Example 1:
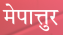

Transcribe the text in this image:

मेपात्तुर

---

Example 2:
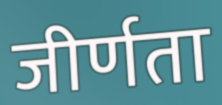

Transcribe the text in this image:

जीर्णता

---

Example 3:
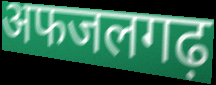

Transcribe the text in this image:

अफजलगढ़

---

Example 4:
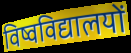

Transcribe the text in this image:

विष्वविद्यालयों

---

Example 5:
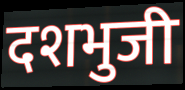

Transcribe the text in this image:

दशभुजी